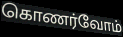
கொணர்வோம்